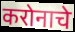
करोनाचे